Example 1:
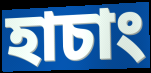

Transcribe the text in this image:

হাচাং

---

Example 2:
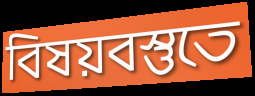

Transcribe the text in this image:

বিষয়বস্তুতে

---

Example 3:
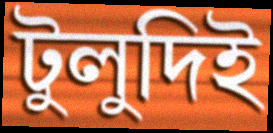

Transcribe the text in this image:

টুলুদিই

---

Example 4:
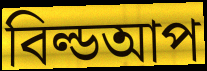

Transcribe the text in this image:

বিল্ডআপ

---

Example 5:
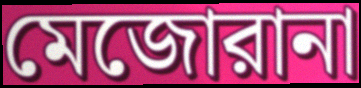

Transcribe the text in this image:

মেজোরানা